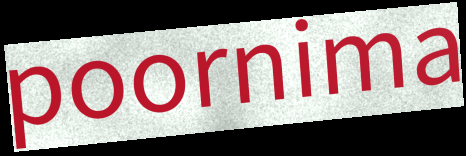
poornima